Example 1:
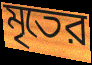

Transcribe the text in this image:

মৃতের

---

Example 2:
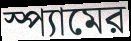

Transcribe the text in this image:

স্প্যামের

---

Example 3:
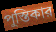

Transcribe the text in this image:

পুস্তিকার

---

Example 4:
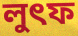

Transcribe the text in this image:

লুৎফ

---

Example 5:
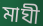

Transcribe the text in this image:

মাঘী